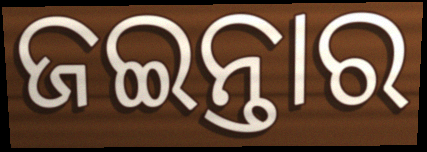
ଜଇନ୍ତାର